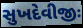
સુખદેવીજીઃ